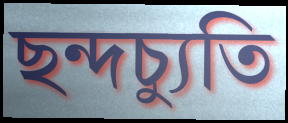
ছন্দচ্যুতি